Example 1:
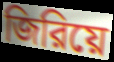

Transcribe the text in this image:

জিরিয়ে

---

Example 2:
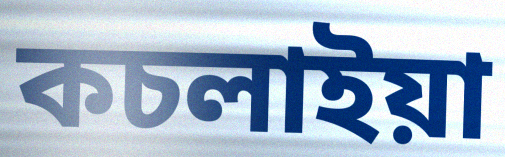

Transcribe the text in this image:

কচলাইয়া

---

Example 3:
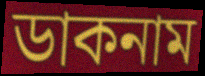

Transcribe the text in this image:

ডাকনাম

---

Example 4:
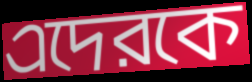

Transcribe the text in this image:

এদেরকে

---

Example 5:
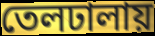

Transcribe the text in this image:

তেলঢালায়